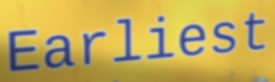
Earliest